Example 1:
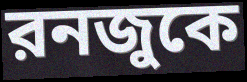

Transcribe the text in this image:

রনজুকে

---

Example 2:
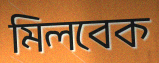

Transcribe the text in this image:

মিলবেক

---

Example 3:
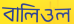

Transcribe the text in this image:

বালিওল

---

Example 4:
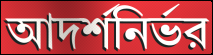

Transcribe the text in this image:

আদর্শনির্ভর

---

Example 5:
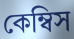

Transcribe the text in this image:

কেম্বিস